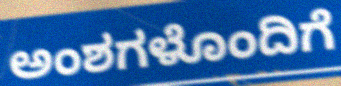
ಅಂಶಗಳೊಂದಿಗೆ